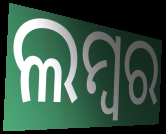
ଲମ୍ବର